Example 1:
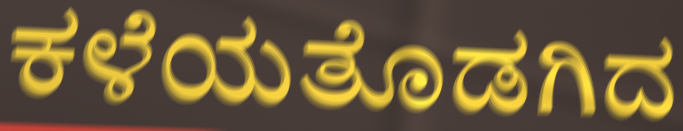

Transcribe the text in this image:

ಕಳೆಯತೊಡಗಿದ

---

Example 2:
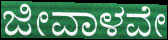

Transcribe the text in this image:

ಜೀವಾಳವೇ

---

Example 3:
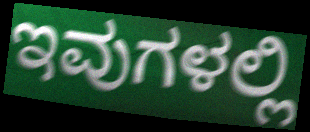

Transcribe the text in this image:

ಇವುಗಳಲ್ಲಿ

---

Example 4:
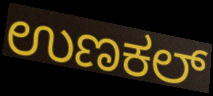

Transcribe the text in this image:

ಉಣಕಲ್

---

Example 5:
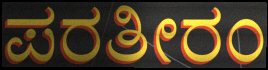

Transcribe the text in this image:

ಪರತೀರಂ